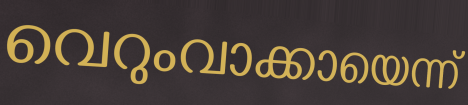
വെറുംവാക്കായെന്ന്